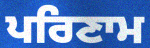
ਪਰਿਣਾਮ